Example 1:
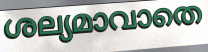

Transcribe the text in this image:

ശല്യമാവാതെ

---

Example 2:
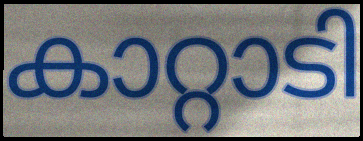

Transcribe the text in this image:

കാറ്റാടി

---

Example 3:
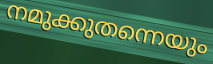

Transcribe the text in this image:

നമുക്കുതന്നെയും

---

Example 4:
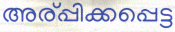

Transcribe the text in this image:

അര്പ്പിക്കപ്പെട്ട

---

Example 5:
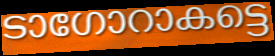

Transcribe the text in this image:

ടാഗോറാകട്ടെ